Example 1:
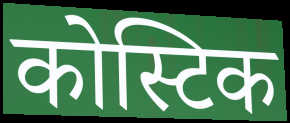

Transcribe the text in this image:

कोस्टिक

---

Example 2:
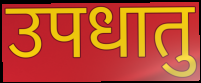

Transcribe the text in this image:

उपधातु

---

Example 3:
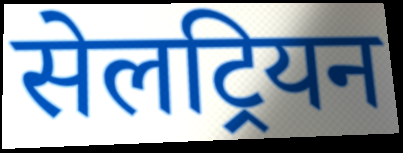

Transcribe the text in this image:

सेलट्रियन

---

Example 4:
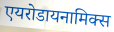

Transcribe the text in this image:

एयरोडायनामिक्स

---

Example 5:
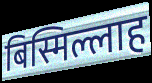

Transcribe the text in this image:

बिस्मिल्लाह